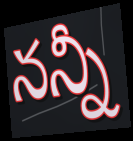
నన్నీ